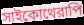
সাইকোথেরাপি